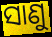
ସାଣୁ